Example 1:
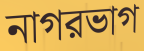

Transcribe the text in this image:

নাগরভাগ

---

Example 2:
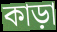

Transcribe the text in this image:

কাড়া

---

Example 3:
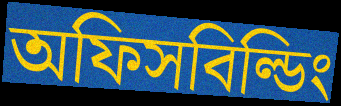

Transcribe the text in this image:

অফিসবিল্ডিং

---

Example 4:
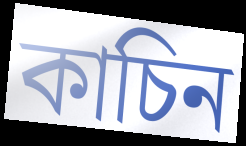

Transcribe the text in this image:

কাচিন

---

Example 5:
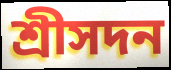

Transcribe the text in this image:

শ্রীসদন